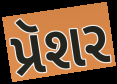
પ્રૅશર